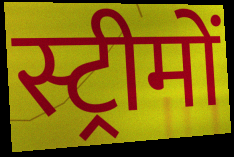
स्ट्रीमों